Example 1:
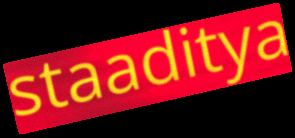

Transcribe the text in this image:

staaditya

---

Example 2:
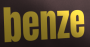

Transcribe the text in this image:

benze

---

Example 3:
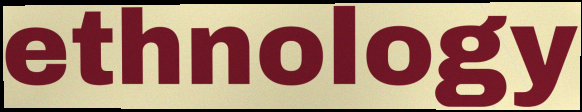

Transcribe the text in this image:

ethnology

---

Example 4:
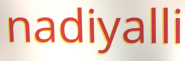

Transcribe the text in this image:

nadiyalli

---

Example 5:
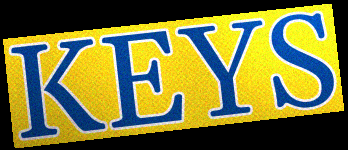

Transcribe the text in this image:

KEYS